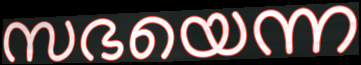
സഭയെന്ന